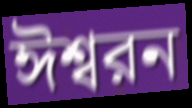
ঈশ্বরন